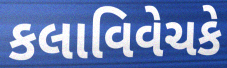
કલાવિવેચકે